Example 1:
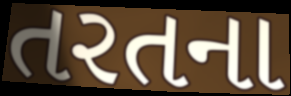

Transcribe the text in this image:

તરતના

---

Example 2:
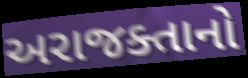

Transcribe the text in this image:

અરાજક્તાનો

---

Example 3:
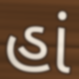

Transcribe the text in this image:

હાં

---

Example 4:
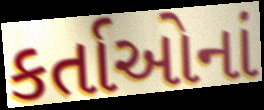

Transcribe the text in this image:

કર્તાઓનાં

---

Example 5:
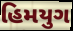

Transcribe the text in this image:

હિમયુગ